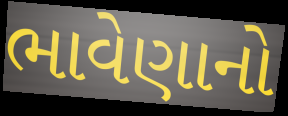
ભાવેણાનો